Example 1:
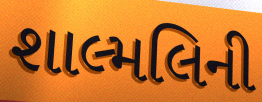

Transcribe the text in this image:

શાલ્મલિની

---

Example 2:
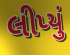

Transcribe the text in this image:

લીપ્યું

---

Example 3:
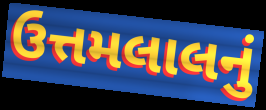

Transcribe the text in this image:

ઉત્તમલાલનું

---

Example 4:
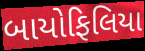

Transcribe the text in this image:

બાયોફિલિયા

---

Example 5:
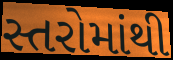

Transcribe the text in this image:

સ્તરોમાંથી